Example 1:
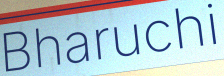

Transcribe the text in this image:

Bharuchi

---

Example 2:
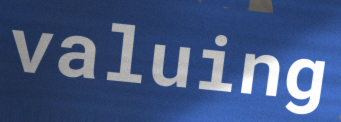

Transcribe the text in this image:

valuing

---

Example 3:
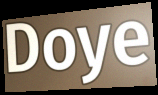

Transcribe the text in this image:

Doye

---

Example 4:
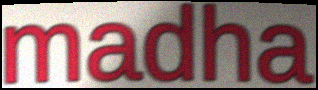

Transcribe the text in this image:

madha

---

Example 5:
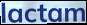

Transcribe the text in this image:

lactam